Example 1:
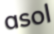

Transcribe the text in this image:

asol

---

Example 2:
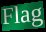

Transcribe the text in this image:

Flag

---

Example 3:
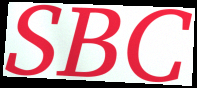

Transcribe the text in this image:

SBC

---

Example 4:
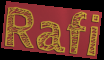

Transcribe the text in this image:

Rafi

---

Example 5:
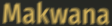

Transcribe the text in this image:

Makwana